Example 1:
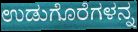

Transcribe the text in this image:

ಉಡುಗೊರೆಗಳನ್ನ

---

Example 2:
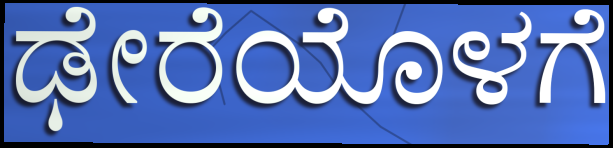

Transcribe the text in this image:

ಢೇರೆಯೊಳಗೆ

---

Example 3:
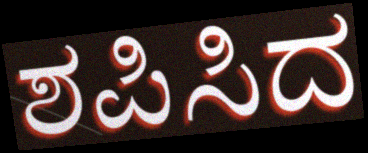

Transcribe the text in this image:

ಶಪಿಸಿದ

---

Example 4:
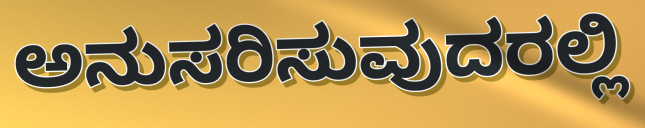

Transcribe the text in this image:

ಅನುಸರಿಸುವುದರಲ್ಲಿ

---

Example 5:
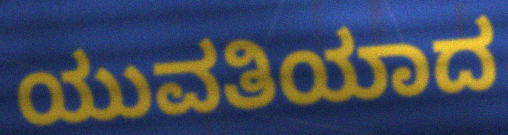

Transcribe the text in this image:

ಯುವತಿಯಾದ